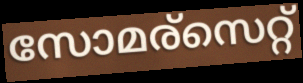
സോമര്സെറ്റ്